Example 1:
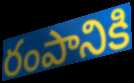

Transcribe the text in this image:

రంపానికి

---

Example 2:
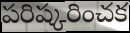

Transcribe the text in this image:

పరిష్కరించక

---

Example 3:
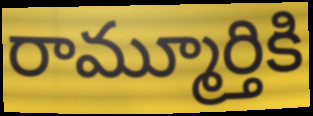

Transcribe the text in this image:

రామ్మూర్తికి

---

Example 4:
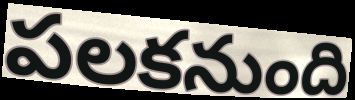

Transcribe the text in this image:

పలకనుంది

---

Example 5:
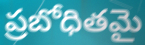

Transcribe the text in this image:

ప్రబోధితమై